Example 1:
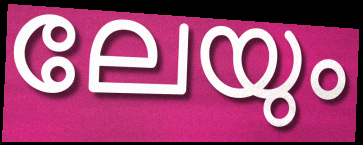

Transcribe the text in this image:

ലേയും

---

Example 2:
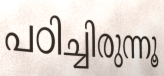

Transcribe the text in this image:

പഠിച്ചിരുന്നൂ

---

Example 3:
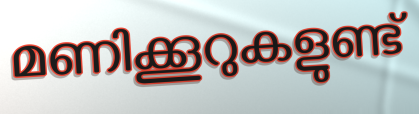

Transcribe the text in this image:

മണിക്കൂറുകളുണ്ട്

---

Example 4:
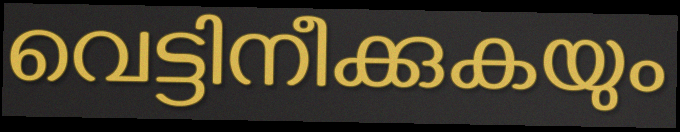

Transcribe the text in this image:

വെട്ടിനീക്കുകയും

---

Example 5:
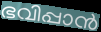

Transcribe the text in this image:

ഭവിപ്പാൻ